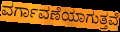
ವರ್ಗಾವಣೆಯಾಗುತ್ತವೆ